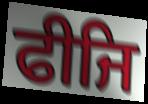
ਫੀਜਿ